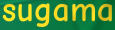
sugama